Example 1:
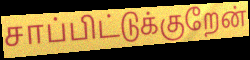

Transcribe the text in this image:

சாப்பிட்டுக்குறேன்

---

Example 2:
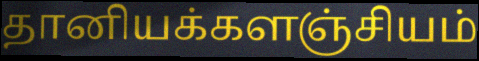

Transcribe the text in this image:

தானியக்களஞ்சியம்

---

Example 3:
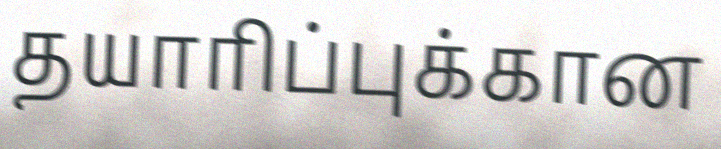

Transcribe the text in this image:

தயாரிப்புக்கான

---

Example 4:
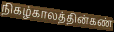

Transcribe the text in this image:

நிகழ்காலத்தின்கண்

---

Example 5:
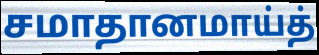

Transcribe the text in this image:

சமாதானமாய்த்